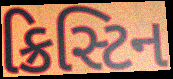
ક્રિસ્ટિન